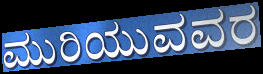
ಮುರಿಯುವವರ